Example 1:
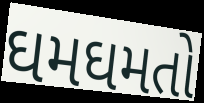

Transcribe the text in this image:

ઘમઘમતો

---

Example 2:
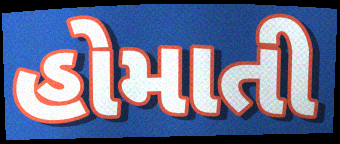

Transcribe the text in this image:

હોમાતી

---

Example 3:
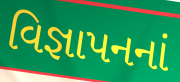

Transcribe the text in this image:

વિજ્ઞાપનનાં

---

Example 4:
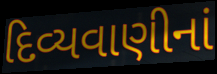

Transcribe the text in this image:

દિવ્યવાણીનાં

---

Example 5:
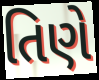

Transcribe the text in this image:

તિણે